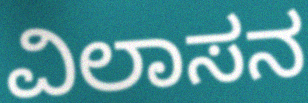
ವಿಲಾಸನ